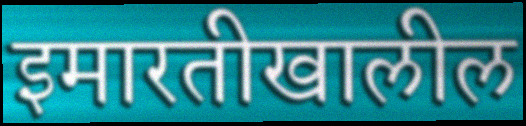
इमारतीखालील